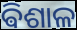
ଵିଶାଳ